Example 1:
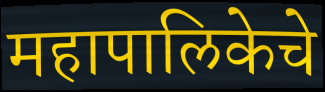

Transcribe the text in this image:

महापालिकेचे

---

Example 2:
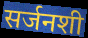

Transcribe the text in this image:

सर्जनशी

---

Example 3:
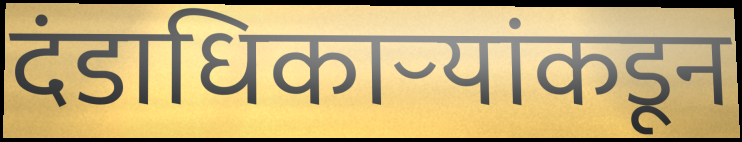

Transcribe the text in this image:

दंडाधिकाऱ्यांकडून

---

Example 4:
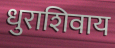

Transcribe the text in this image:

धुराशिवाय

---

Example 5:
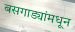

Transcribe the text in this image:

बसगाड्यांमधून